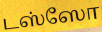
டஸ்ஸோ